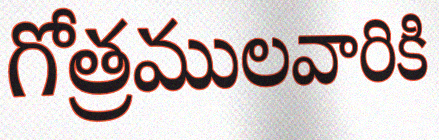
గోత్రములవారికి